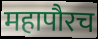
महापौरच